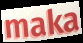
maka